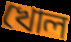
খোল